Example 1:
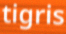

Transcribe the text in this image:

tigris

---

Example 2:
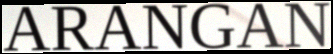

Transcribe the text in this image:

ARANGAN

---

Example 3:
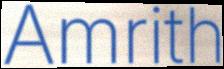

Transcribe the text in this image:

Amrith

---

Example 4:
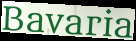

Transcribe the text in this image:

Bavaria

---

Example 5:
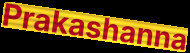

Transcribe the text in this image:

Prakashanna